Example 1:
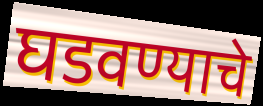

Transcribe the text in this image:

घडवण्याचे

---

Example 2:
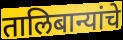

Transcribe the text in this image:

तालिबान्यांचे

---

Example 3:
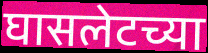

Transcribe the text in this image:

घासलेटच्या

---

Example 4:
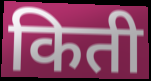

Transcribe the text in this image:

किती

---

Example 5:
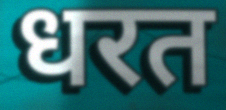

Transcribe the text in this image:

धरत